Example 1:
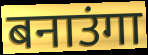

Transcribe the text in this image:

बनाउंगा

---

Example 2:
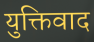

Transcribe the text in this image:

युक्तिवाद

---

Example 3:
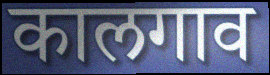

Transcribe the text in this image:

कालगाव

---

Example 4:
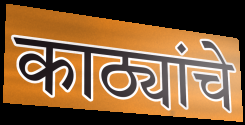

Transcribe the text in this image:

काठ्यांचे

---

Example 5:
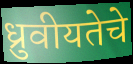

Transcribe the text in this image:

ध्रुवीयतेचे